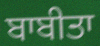
ਬਾਬੀਤਾ